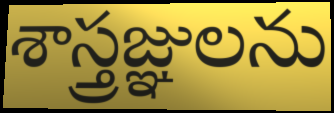
శాస్త్రజ్ఞులను